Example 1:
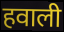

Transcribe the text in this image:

हवाली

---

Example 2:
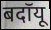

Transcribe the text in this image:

बदॉयू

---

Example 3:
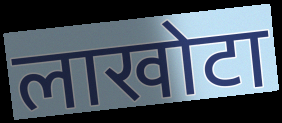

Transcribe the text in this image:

लाखोटा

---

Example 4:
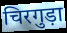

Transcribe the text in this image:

चिरगुड़ा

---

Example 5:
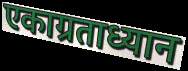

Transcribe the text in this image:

एकाग्रताध्यान